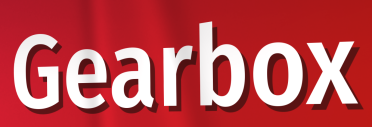
Gearbox